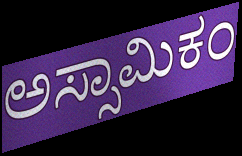
ಅಸ್ಸಾಮಿಕಂ